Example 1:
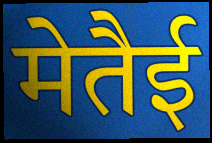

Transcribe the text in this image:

मेतैई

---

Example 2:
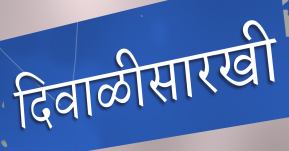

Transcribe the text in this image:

दिवाळीसारखी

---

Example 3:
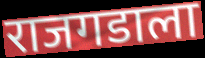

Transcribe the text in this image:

राजगडाला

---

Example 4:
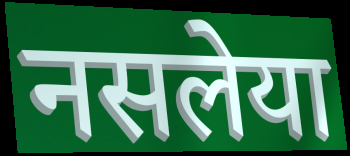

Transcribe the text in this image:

नसलेया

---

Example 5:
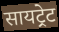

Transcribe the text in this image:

सायट्रेट